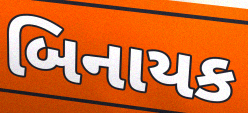
બિનાયક